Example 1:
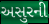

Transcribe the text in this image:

અસુરની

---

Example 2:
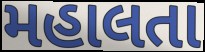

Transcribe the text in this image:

મહાલતા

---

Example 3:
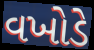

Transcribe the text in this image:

વખોડે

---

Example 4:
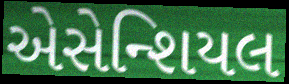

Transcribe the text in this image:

એસેન્શિયલ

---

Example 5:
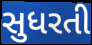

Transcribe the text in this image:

સુધરતી